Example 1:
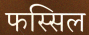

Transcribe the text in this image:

फस्सिल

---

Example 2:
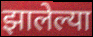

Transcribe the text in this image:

झालेल्या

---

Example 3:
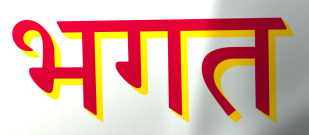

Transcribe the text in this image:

भगत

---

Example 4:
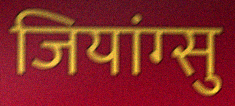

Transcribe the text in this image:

जियांग्सु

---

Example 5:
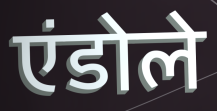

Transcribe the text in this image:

एंडोले